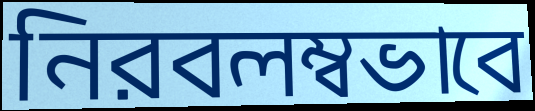
নিরবলম্বভাবে